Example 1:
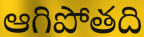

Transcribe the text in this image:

ఆగిపోతది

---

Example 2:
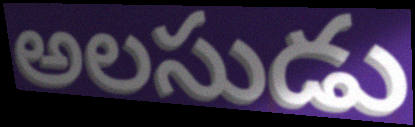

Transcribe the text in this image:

అలసుడు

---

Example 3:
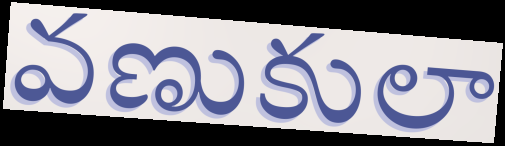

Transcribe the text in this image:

వణుకులా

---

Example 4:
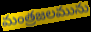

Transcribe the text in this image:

మంత్రజలమును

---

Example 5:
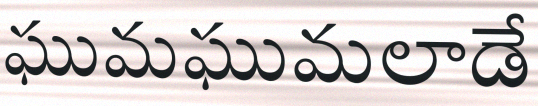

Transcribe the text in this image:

ఘుమఘుమలాడే